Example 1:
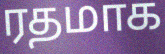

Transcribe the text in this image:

ரதமாக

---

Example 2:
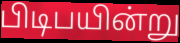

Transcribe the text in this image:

பிடிபயின்று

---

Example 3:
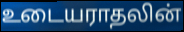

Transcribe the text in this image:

உடையராதலின்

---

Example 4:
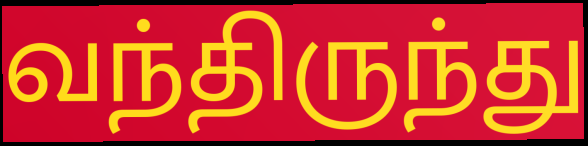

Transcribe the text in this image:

வந்திருந்து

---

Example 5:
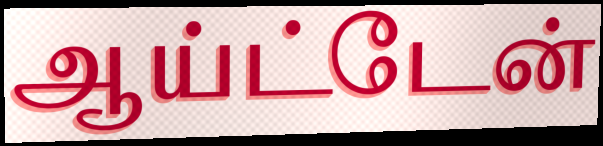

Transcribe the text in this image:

ஆய்ட்டேன்